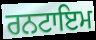
ਰਨਟਾਇਮ